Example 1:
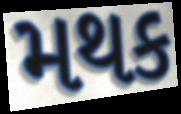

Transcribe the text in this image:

મથક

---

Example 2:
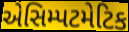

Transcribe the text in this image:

એસિમ્પટમેટિક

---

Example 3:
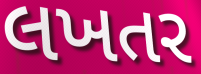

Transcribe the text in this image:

લખતર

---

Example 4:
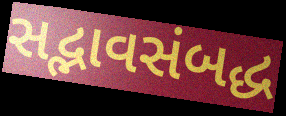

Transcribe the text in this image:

સદ્ભાવસંબદ્ધ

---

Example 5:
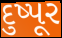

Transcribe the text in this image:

દુષ્પૂર